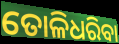
ତୋଳିଧରିବା